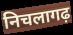
निचलागढ़